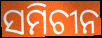
ସମିଚୀନ